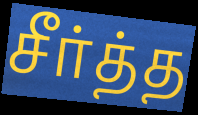
சீர்த்த